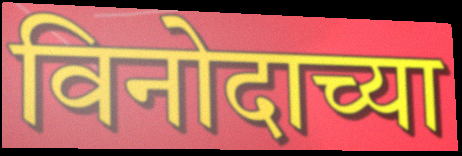
विनोदाच्या